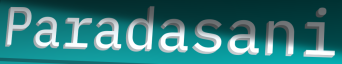
Paradasani